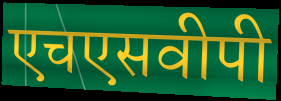
एचएसवीपी